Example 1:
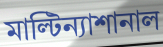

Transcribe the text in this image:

মাল্টিন্যাশানাল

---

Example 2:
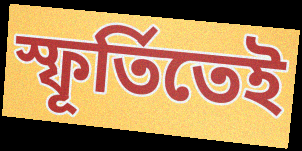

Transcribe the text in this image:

স্ফূর্তিতেই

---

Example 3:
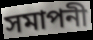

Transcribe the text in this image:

সমাপনী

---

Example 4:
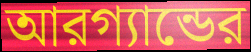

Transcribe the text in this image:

আরগ্যান্ডের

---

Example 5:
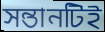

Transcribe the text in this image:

সন্তানটিই